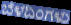
ಬೆಳದಿಂಗಳು